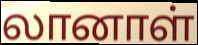
லானாள்